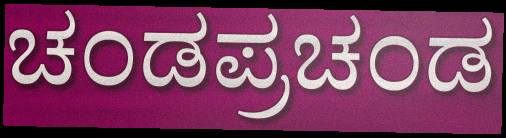
ಚಂಡಪ್ರಚಂಡ